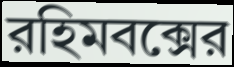
রহিমবক্সের